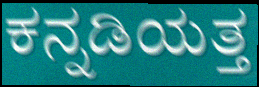
ಕನ್ನಡಿಯತ್ತ